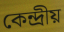
কেন্দ্ৰীয়